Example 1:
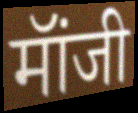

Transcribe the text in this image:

मॉंजी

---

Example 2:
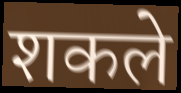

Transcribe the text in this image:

शकले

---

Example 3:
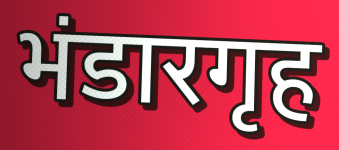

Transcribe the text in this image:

भंडारगृह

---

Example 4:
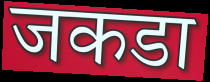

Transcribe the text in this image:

जकडा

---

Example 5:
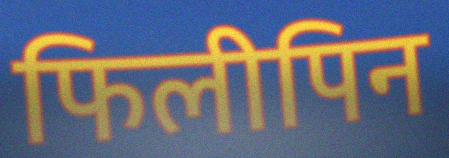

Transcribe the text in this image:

फिलीपिन